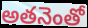
అతనెంతో